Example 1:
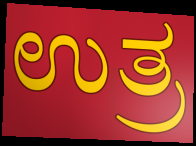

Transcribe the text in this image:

ಉತ್ರ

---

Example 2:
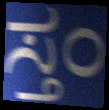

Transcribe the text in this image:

ಸ್ತಂ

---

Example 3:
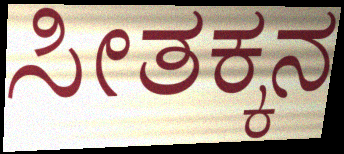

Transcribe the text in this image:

ಸೀತಕ್ಕನ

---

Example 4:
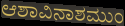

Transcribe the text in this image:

ಆಶಾವಿನಾಶಮುಂ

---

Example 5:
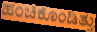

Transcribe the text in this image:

ಹಂಚಿಕೊಂಡಿತ್ತು